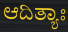
ಆದಿತ್ಯಾಃ